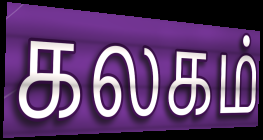
கலகம்